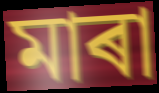
মাৰা